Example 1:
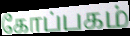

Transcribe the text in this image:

கோப்பகம்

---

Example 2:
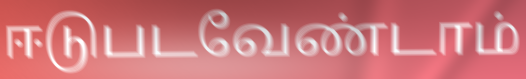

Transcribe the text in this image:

ஈடுபடவேண்டாம்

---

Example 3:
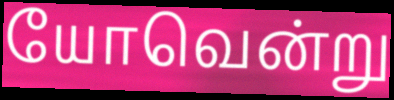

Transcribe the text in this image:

யோவென்று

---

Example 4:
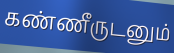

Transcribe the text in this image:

கண்ணீருடனும்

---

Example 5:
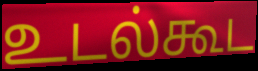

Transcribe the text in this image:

உடல்கூட